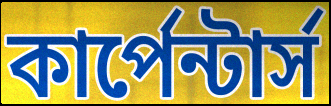
কার্পেন্টার্স